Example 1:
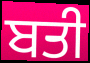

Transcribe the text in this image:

ਬਤੀ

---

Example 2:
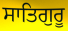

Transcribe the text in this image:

ਸਾਤਿਗੁਰੂ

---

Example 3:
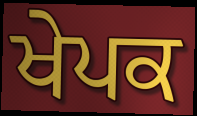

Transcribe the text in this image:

ਖੇਪਕ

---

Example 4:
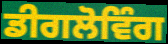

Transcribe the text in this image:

ਡੀਗਲੋਵਿੰਗ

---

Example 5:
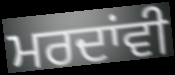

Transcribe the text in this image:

ਮਰਦਾਂਵੀ